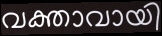
വക്താവായി